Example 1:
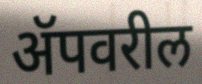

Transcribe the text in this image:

ॲपवरील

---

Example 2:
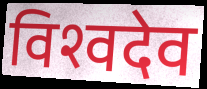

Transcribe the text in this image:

विश्वदेव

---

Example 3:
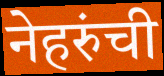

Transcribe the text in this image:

नेहरुंची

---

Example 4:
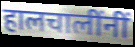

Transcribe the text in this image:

हालचालींनीं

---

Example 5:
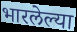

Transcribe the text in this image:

भारलेल्या